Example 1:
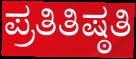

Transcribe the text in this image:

ಪ್ರತಿತಿಷ್ಠತಿ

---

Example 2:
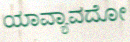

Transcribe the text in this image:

ಯಾವ್ಯಾವದೋ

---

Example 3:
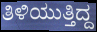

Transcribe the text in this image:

ತಿಳಿಯುತ್ತಿದ್ದ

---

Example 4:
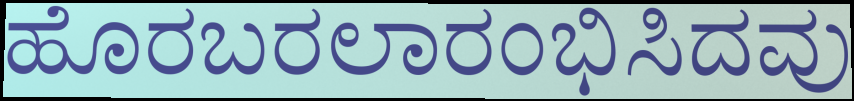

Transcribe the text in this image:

ಹೊರಬರಲಾರಂಭಿಸಿದವು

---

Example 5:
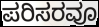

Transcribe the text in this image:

ಪರಿಸರವೂ